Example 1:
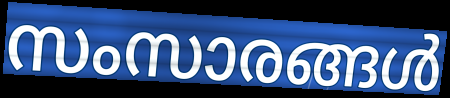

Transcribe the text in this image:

സംസാരങ്ങൾ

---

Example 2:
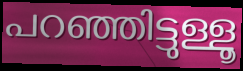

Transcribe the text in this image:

പറഞ്ഞിട്ടുള്ളൂ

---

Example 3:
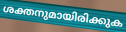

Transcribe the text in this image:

ശക്തനുമായിരിക്കുക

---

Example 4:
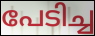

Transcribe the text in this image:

പേടിച്ച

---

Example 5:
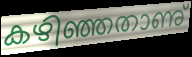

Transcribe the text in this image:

കഴിഞ്ഞതാണു്